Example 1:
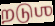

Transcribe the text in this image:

றடுஶ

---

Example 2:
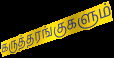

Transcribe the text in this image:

கருத்தரங்குகளும்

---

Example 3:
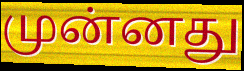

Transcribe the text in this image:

முன்னது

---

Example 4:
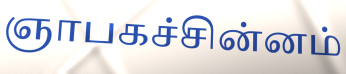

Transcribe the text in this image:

ஞாபகச்சின்னம்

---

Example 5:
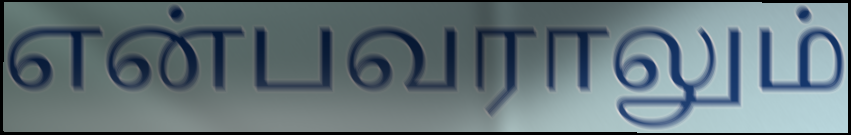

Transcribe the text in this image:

என்பவராலும்